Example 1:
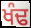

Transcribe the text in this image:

ਖੰਢ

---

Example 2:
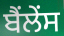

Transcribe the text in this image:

ਬੈਂਲੇਂਸ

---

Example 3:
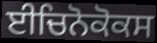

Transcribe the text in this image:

ਈਚਿਨੋਕੋਕਸ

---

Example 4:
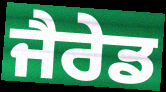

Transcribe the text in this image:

ਜੈਰੇਡ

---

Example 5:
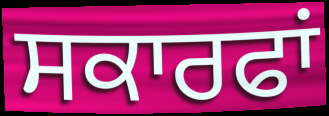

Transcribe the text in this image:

ਸਕਾਰਫਾਂ